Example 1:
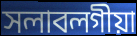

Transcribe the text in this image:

সলাবলগীয়া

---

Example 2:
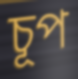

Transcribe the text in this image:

চূপ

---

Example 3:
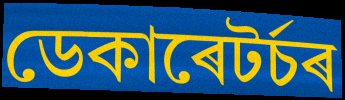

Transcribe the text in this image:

ডেকাৰেটৰ্চৰ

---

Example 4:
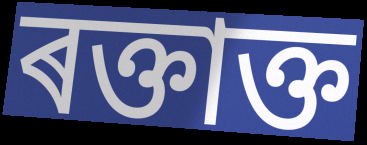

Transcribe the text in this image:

ৰক্তাক্ত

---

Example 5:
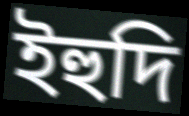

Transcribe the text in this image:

ইহুদি